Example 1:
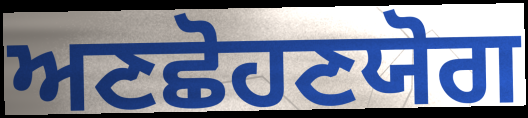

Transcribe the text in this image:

ਅਣਛੋਹਣਯੋਗ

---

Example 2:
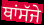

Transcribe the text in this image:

ਥਾਂਸੱਜੇ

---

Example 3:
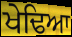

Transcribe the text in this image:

ਖੇਢਿਆ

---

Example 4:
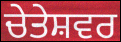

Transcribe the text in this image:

ਚੇਤੇਸ਼ਵਰ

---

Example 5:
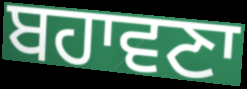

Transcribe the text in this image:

ਬਹਾਵਣਾ